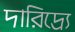
দারিদ্র্যে